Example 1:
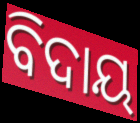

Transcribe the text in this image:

ବିଦାୟ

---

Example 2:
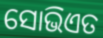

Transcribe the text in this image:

ସୋଭିଏତ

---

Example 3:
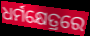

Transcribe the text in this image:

ଧର୍ମକ୍ଷେତ୍ରରେ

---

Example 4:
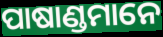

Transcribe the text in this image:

ପାଷାଣ୍ଡମାନେ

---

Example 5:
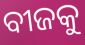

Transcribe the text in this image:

ବୀଜକୁ